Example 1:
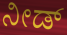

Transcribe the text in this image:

ನೀಡ್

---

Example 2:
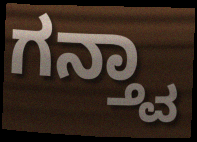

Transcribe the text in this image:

ಗನ್ತ್ವಾ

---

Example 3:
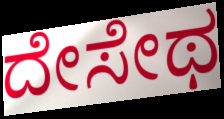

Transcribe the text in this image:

ದೇಸೇಥ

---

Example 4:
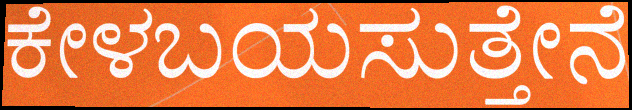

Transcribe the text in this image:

ಕೇಳಬಯಸುತ್ತೇನೆ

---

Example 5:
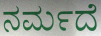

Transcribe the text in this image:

ನರ್ಮದೆ